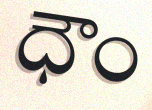
ధౌం